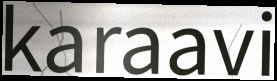
karaavi